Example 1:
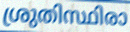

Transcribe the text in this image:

ശ്രുതിസ്ഥിരാ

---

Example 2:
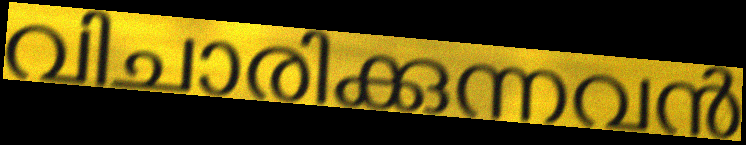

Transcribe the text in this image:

വിചാരിക്കുന്നവൻ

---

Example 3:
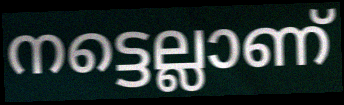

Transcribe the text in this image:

നട്ടെല്ലാണ്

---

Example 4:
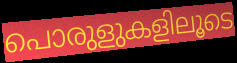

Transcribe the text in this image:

പൊരുളുകളിലൂടെ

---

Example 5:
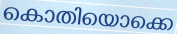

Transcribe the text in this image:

കൊതിയൊക്കെ